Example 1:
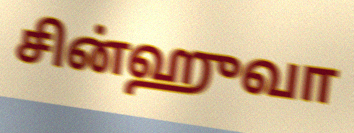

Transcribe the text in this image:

சின்ஹுவா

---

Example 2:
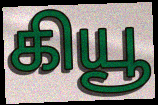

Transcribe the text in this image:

கியூ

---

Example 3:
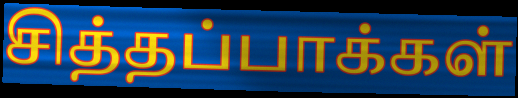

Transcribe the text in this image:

சித்தப்பாக்கள்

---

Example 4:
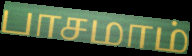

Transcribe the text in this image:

பாசமாம்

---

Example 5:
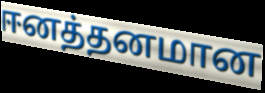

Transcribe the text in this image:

ஈனத்தனமான